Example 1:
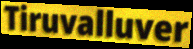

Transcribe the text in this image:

Tiruvalluver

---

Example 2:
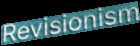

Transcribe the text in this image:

Revisionism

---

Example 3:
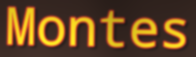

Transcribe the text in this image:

Montes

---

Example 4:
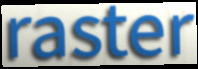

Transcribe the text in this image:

raster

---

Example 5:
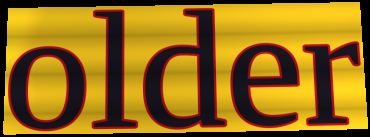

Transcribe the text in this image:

older